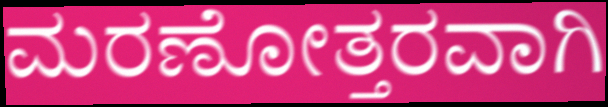
ಮರಣೋತ್ತರವಾಗಿ